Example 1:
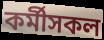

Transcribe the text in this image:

কৰ্মীসকল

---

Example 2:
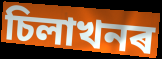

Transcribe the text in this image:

চিলাখনৰ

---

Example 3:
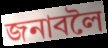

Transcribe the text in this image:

জনাবলৈ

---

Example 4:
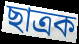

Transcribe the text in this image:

ছাত্ৰক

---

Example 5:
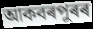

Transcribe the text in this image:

আকবৰপুৰৰ